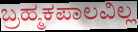
ಬ್ರಹ್ಮಕಪಾಲವಿಲ್ಲ